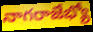
నాగరాజేభ్యో